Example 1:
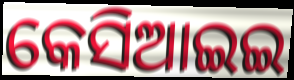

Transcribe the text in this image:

କେସିଆଇଇ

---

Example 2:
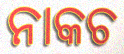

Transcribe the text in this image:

ନାକଚ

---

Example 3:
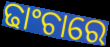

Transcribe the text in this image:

ଢାଂଚାରେ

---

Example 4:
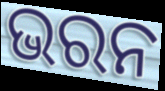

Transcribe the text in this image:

ଭରନ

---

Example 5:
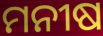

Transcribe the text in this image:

ମନୀଷ